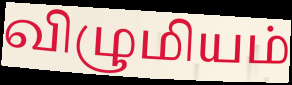
விழுமியம்